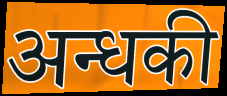
अन्धकी